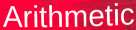
Arithmetic